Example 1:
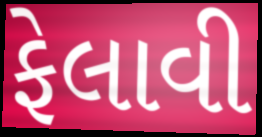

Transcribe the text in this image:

ફેલાવી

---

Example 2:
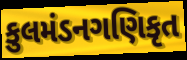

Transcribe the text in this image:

કુલમંડનગણિકૃત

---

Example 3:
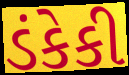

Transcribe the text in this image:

ડંકેકી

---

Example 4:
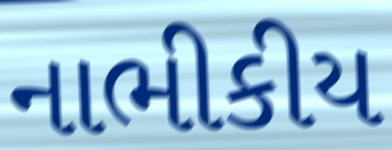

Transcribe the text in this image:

નાભીકીય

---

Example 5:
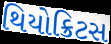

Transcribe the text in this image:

થિયોક્રિટસ